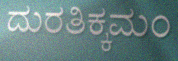
ದುರತಿಕ್ಕಮಂ